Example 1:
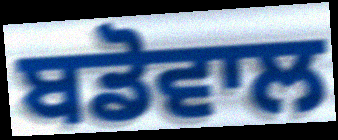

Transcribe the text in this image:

ਬਡੋਵਾਲ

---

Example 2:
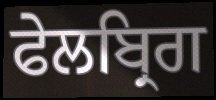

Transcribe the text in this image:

ਫੇਲਬ੍ਰਿਗ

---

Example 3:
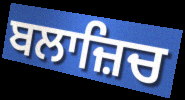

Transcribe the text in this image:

ਬਲਾਜ਼ਿਚ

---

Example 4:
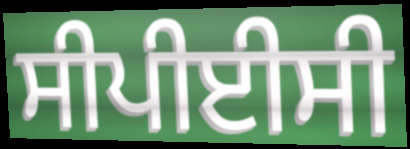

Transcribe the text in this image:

ਸੀਪੀਈਸੀ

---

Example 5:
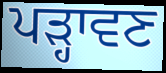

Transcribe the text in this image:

ਪੜ੍ਹਾਵਣ